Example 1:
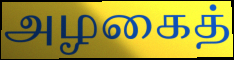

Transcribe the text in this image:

அழகைத்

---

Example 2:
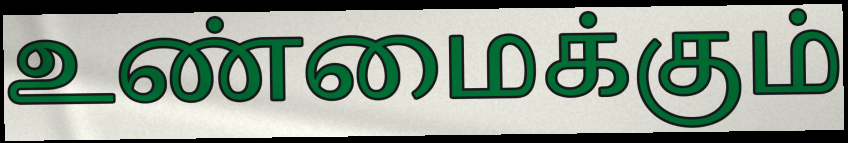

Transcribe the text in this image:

உண்மைக்கும்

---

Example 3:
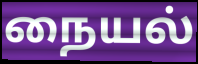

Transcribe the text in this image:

நையல்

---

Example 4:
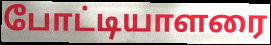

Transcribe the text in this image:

போட்டியாளரை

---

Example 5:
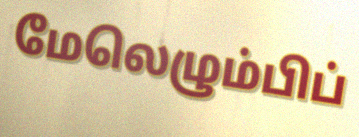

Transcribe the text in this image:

மேலெழும்பிப்